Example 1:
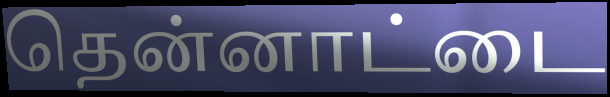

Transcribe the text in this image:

தென்னாட்டை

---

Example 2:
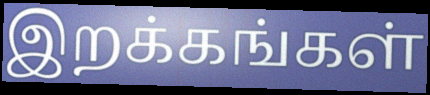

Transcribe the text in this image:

இறக்கங்கள்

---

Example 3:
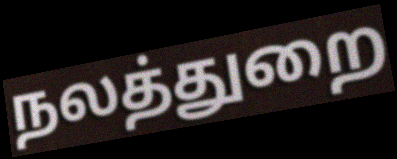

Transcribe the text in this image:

நலத்துறை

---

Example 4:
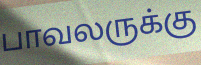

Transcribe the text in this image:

பாவலருக்கு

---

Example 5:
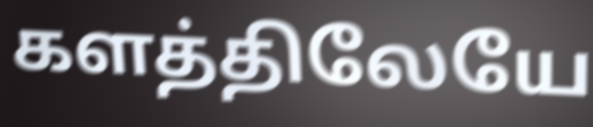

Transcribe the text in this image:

களத்திலேயே